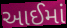
આઈમાં